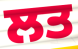
ਲਤ